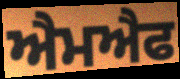
ਐਮਐਫ